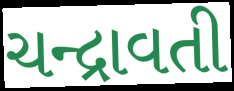
ચન્દ્રાવતી